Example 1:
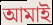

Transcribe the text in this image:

আমাই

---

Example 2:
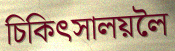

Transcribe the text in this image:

চিকিৎসালয়লৈ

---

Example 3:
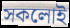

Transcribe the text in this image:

সকলোই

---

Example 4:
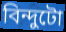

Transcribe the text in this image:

বিন্দুটো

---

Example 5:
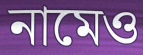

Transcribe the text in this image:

নামেও